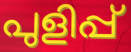
പുളിപ്പ്